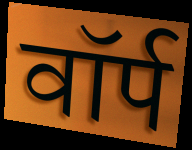
वॉर्प